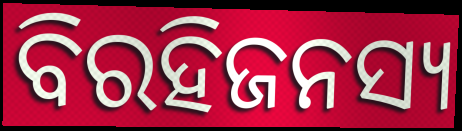
ବିରହିଜନସ୍ୟ